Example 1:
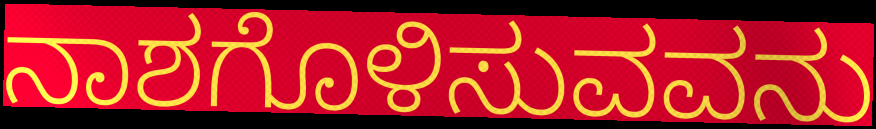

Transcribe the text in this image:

ನಾಶಗೊಳಿಸುವವನು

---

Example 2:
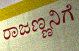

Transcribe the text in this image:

ರಾಜಣ್ಣನಿಗೆ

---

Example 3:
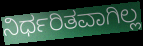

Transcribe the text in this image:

ನಿರ್ಧರಿತವಾಗಿಲ್ಲ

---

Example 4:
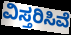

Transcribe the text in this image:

ವಿಸ್ತರಿಸಿವೆ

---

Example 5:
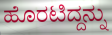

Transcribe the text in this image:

ಹೊರಟಿದ್ದನ್ನು